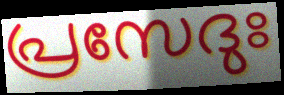
പ്രസേദുഃ